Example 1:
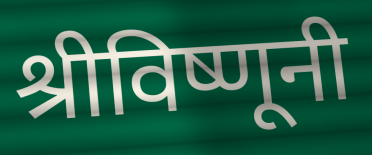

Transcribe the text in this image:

श्रीविष्णूनी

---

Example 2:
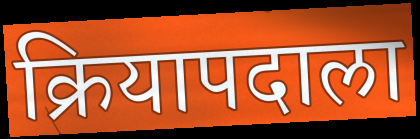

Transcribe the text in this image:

क्रियापदाला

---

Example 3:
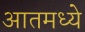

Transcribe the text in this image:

आतमध्ये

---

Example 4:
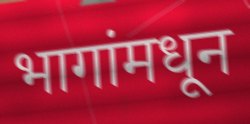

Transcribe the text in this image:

भागांमधून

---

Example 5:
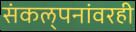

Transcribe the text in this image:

संकल्पनांवरही